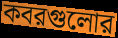
কবরগুলোর